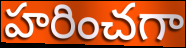
హరించగా